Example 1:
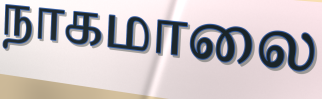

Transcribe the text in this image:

நாகமாலை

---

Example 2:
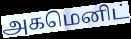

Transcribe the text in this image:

அகமெனிட்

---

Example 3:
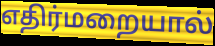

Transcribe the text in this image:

எதிர்மறையால்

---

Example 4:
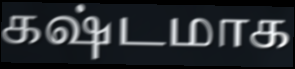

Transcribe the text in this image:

கஷ்டமாக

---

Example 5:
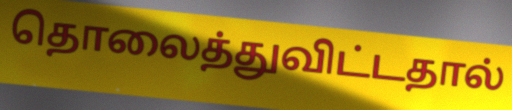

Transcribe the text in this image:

தொலைத்துவிட்டதால்